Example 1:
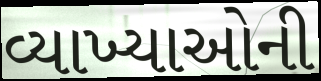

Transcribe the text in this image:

વ્યાખ્યાઓની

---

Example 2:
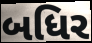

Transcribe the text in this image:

બધિર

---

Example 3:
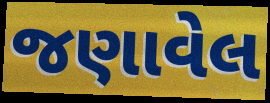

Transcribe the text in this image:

જણાવેલ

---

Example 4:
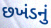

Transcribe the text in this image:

છખંડનું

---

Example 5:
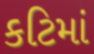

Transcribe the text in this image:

કટિમાં